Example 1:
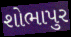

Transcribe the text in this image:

શોભાપુર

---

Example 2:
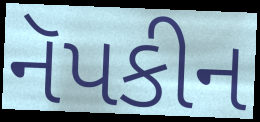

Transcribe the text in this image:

નૅપકીન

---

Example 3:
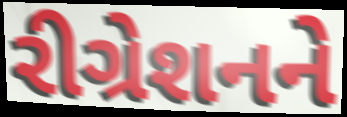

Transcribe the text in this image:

રીગ્રેશનને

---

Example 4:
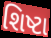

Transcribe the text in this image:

શિષ્ટા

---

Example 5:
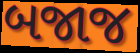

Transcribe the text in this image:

બજાજ